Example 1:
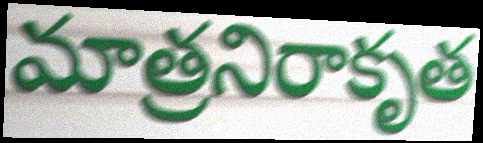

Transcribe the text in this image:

మాత్రనిరాకృత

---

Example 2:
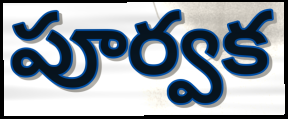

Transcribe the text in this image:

పూర్వక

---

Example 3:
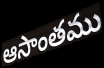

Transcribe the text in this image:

ఆసాంతము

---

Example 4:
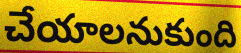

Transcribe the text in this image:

చేయాలనుకుంది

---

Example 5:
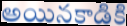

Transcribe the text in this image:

అయినకాడికి